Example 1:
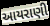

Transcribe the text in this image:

આયરાણી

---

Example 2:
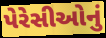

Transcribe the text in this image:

પેરેસીઓનું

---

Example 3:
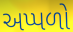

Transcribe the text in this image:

અપ્પળો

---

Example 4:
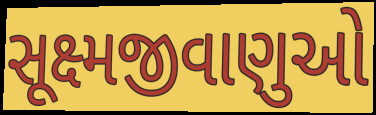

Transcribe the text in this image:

સૂક્ષ્મજીવાણુઓ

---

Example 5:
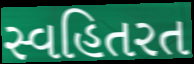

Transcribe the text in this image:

સ્વહિતરત